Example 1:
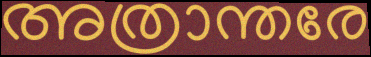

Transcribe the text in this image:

അത്രാന്തരേ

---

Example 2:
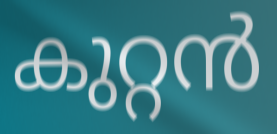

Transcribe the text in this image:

കുറ്റൻ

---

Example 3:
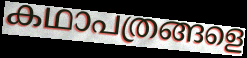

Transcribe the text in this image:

കഥാപത്രങ്ങളെ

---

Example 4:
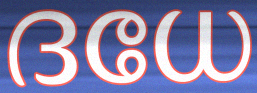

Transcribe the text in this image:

ദധേ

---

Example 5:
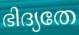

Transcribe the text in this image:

ഭിദ്യതേ